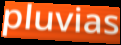
pluvias